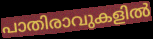
പാതിരാവുകളിൽ